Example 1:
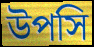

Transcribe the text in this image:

উপসি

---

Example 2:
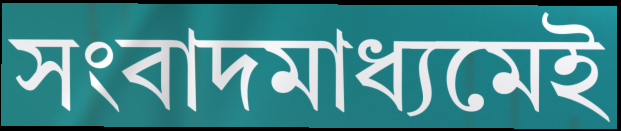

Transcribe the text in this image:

সংবাদমাধ্যমেই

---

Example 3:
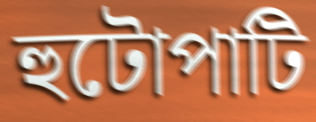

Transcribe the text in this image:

হুটোপাটি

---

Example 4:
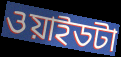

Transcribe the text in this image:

ওয়াইডটা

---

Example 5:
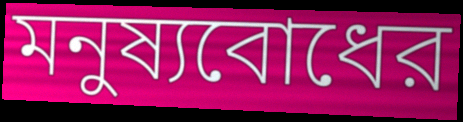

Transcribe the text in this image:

মনুষ্যবোধের